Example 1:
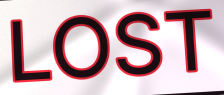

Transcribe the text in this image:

LOST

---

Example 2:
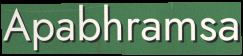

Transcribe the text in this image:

Apabhramsa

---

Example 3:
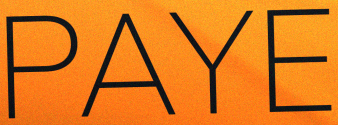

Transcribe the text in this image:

PAYE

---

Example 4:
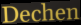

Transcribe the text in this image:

Dechen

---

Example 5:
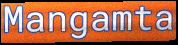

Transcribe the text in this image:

Mangamta